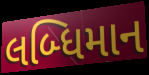
લબ્ધિમાન